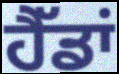
ਹੈੱਡਾਂ